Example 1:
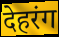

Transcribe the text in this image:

देहरंग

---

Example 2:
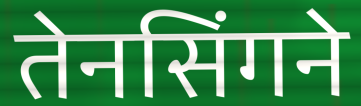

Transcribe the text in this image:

तेनसिंगने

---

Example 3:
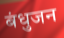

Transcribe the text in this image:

बंधुजन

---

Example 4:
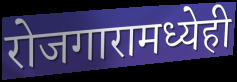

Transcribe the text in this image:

रोजगारामध्येही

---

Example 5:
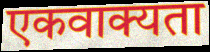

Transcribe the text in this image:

एकवाक्यता